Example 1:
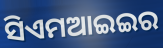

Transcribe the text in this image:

ସିଏମଆଇଇର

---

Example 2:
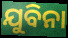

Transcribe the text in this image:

ଯୁବିନା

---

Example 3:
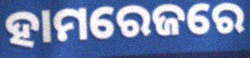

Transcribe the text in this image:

ହାମରେଜରେ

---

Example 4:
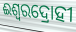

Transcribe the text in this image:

ଈଶ୍ଵରଦ୍ରୋହୀ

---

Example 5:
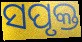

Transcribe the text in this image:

ସପୃକ୍ତ